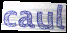
caul